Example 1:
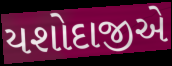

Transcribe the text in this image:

યશોદાજીએ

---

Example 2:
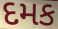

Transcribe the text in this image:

દમક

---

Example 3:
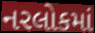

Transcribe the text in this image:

નરલોકમાં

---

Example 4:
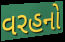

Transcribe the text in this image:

વરહનો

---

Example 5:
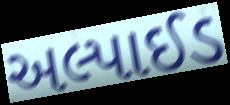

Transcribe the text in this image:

અલ્પાઈડ